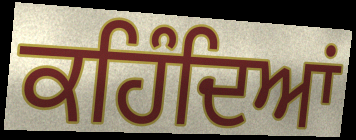
ਕਹਿੰਦਿਆਂ